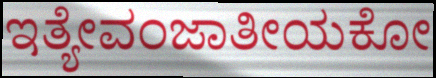
ಇತ್ಯೇವಂಜಾತೀಯಕೋ